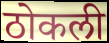
ठोकली